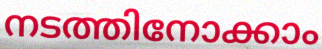
നടത്തിനോക്കാം